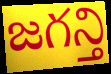
జగన్తి